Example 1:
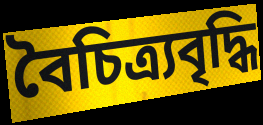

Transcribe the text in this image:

বৈচিত্র্যবৃদ্ধি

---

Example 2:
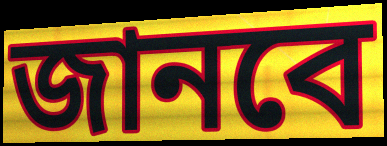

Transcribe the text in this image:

জানবে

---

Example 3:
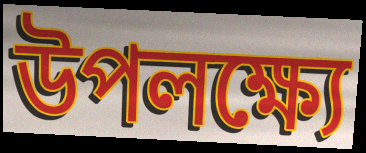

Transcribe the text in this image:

উপলক্ষ্যে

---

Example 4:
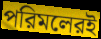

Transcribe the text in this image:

পরিমলেরই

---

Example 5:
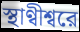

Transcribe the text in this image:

স্থাণ্বীশ্বরে